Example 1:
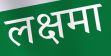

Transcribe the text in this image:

लक्षमा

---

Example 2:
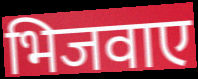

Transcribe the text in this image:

भिजवाए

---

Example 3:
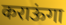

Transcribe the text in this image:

कराऊंगा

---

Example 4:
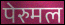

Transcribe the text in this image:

पेरुमल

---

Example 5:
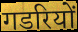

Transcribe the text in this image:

गडरियों